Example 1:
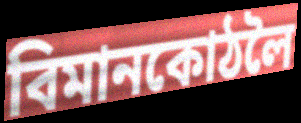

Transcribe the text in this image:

বিমানকোঠলৈ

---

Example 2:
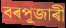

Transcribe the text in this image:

বৰপূজাৰী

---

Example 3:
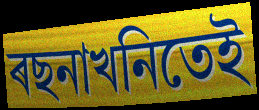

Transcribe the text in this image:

ৰছনাখনিতেই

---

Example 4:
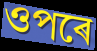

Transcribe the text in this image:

ওপৰে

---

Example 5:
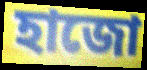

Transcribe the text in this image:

হাজো